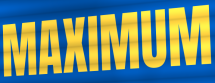
MAXIMUM